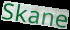
Skane